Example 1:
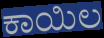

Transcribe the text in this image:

ಕಾಯಿಲ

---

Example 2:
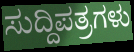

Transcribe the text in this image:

ಸುದ್ದಿಪತ್ರಗಳು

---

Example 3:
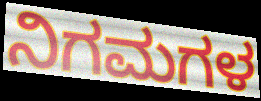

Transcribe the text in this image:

ನಿಗಮಗಳ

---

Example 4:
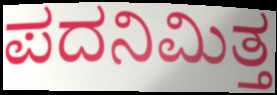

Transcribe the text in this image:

ಪದನಿಮಿತ್ತ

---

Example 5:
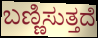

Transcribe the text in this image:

ಬಣ್ಣಿಸುತ್ತದೆ